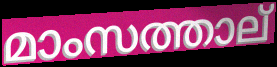
മാംസത്താല്